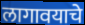
लागावयाचे